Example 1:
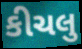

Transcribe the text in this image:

કીચલુ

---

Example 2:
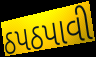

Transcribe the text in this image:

ઠપઠપાવી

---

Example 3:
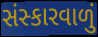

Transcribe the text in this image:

સંસ્કારવાળું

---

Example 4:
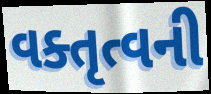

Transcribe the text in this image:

વક્તૃત્વની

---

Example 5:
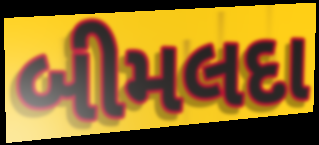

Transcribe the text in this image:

બીમલદા